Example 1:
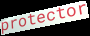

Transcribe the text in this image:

protector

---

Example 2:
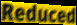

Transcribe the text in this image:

Reduced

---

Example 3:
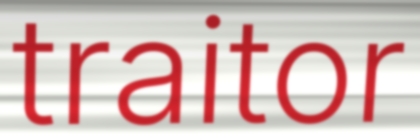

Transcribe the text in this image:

traitor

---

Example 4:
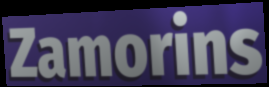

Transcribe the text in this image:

Zamorins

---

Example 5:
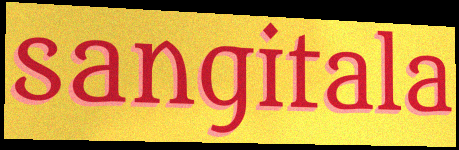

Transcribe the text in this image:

sangitala